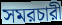
সমরচারী